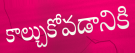
కాల్చుకోవడానికి